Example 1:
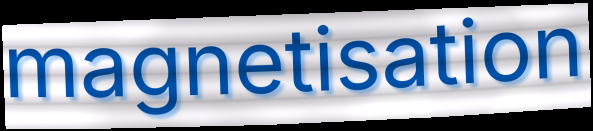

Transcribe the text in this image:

magnetisation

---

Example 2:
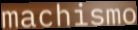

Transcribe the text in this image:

machismo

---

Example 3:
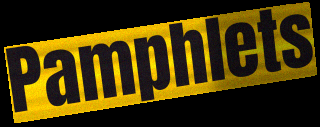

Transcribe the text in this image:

Pamphlets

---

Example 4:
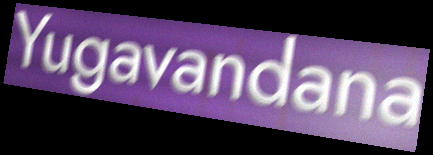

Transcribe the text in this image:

Yugavandana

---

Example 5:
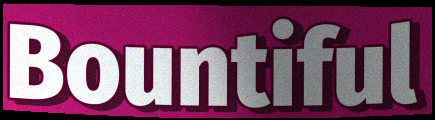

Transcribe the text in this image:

Bountiful